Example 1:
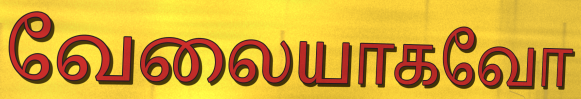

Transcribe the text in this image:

வேலையாகவோ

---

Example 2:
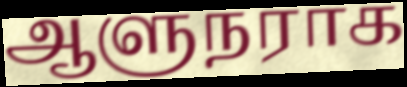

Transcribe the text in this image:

ஆளுநராக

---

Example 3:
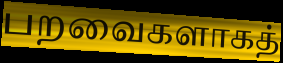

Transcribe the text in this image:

பறவைகளாகத்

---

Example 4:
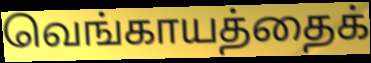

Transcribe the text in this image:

வெங்காயத்தைக்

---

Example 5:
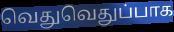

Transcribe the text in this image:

வெதுவெதுப்பாக